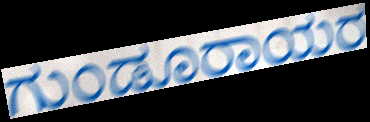
ಗುಂಡೂರಾಯರ